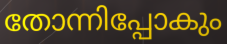
തോന്നിപ്പോകും